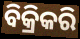
ବିକ୍ରିକରି